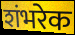
शंभरेक